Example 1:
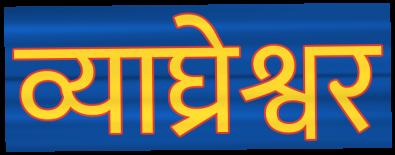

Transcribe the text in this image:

व्याघ्रेश्वर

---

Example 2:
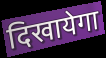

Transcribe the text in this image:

दिखायेगा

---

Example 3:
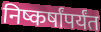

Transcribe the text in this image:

निष्कर्षांपर्यंत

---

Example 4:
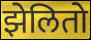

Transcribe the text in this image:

झेलितो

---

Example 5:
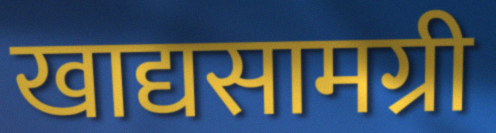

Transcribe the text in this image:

खाद्यसामग्री